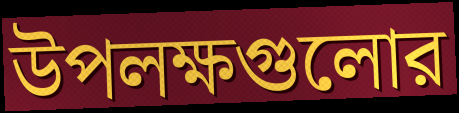
উপলক্ষগুলোর